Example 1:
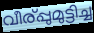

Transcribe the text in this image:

വീര്പ്പുമുട്ടിച്ച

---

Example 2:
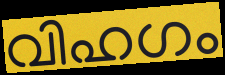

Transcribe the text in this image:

വിഹഗം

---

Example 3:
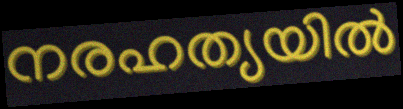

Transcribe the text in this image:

നരഹത്യയിൽ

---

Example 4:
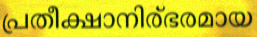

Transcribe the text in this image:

പ്രതീക്ഷാനിര്ഭരമായ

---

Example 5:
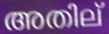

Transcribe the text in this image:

അതില്